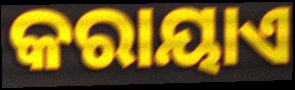
କରାୟାଏ